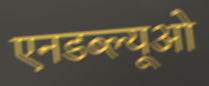
एनडब्ल्यूओ